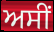
ਅਸੀੰ